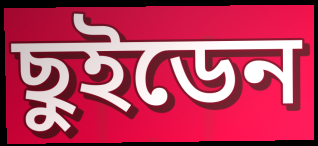
ছুইডেন